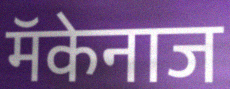
मॅकेनाज